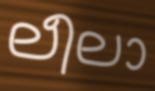
ലീലാ